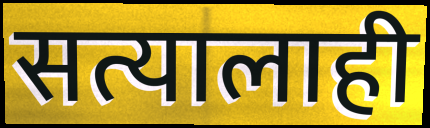
सत्यालाही